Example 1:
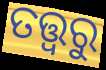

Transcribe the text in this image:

ତତ୍ତ୍ୱରୁ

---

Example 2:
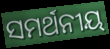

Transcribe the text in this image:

ସମର୍ଥନୀୟ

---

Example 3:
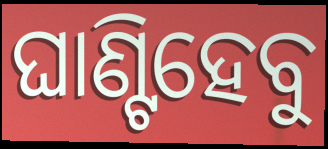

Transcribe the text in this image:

ଘାଣ୍ଟିହେବୁ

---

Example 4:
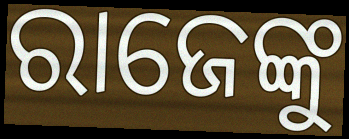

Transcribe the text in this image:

ରାଜେଙ୍କୁ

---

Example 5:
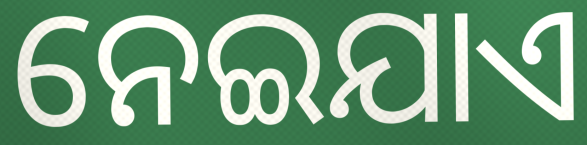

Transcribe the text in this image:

ନେଇଯାଏ